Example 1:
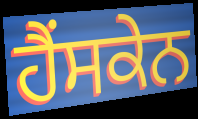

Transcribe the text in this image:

ਹੈਂਸਕੇਨ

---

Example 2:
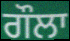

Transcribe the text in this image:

ਗੌਲਾ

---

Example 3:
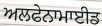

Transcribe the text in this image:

ਅਲਫੇਨਾਮਾਈਡ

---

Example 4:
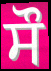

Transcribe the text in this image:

ਸੌ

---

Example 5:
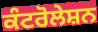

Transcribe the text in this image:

ਕੰਟਰੋਲੇਸ਼ਨ